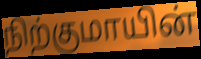
நிற்குமாயின்